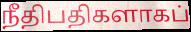
நீதிபதிகளாகப்